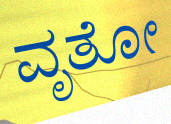
ವೃತೋ